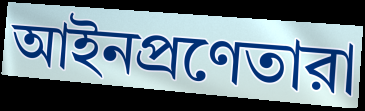
আইনপ্রণেতারা